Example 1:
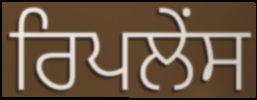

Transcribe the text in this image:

ਰਿਪਲੇਂਸ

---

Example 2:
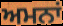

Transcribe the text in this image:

ਅਮਨਾਂ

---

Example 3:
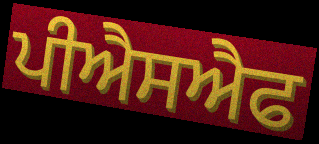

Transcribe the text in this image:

ਪੀਐਸਐਫ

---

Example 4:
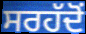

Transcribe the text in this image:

ਸਰਹੱਦੋਂ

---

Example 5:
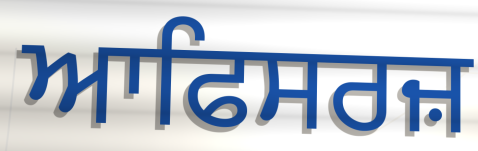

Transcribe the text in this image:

ਆਫਿਸਰਜ਼